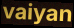
vaiyan